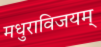
मधुराविजयम्